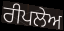
ਰੀਪਲੇਅ